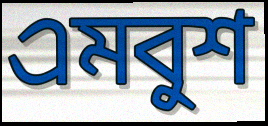
এমবুশ